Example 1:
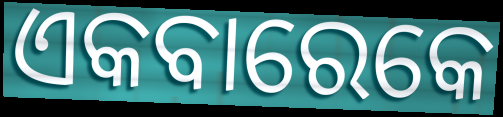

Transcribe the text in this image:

ଏକବାରେକେ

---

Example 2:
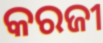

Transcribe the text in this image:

କରଜୀ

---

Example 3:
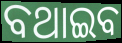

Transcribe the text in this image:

ବଥାଇବ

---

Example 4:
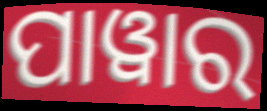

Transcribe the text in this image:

ପାୱାର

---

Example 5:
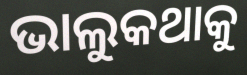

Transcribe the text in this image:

ଭାଲୁକଥାକୁ